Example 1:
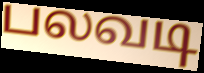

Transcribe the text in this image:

பலவடி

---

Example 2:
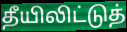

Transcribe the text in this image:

தீயிலிட்டுத்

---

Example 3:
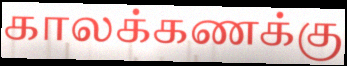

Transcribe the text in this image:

காலக்கணக்கு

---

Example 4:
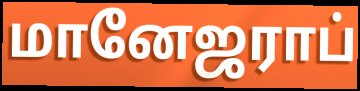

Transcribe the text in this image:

மானேஜராப்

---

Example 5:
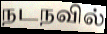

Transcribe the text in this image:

நடநவில்